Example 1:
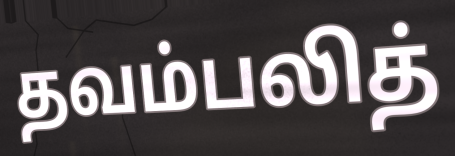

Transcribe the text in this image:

தவம்பலித்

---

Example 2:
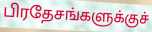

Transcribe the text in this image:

பிரதேசங்களுக்குச்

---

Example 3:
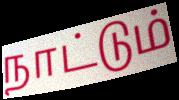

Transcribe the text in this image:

நாட்டும்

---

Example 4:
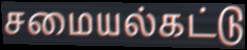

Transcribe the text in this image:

சமையல்கட்டு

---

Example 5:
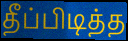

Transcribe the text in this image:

தீப்பிடித்த